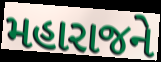
મહારાજને